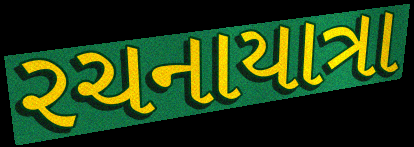
રચનાયાત્રા